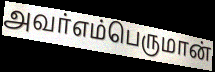
அவர்எம்பெருமான்